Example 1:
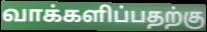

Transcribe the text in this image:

வாக்களிப்பதற்கு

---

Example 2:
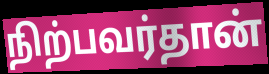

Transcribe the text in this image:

நிற்பவர்தான்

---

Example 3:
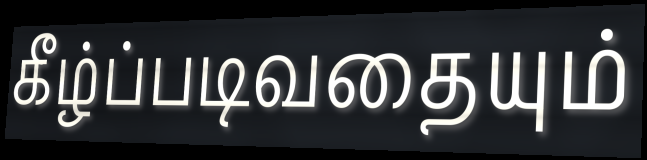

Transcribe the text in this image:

கீழ்ப்படிவதையும்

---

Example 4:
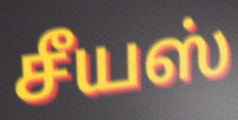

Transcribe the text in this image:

சீயஸ்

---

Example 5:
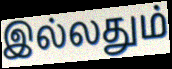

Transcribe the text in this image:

இல்லதும்